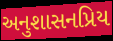
અનુશાસનપ્રિય